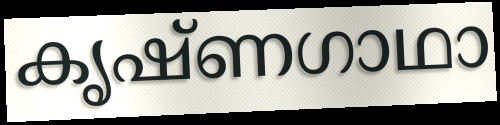
കൃഷ്ണഗാഥാ